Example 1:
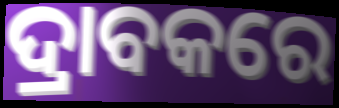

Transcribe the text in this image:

ଦ୍ରାବକରେ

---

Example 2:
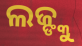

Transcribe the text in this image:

ଲଜ୍ଙ୍କୁ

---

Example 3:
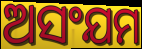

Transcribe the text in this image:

ଅସଂଯମ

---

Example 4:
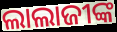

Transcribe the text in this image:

ଲାଲାଜୀଙ୍କ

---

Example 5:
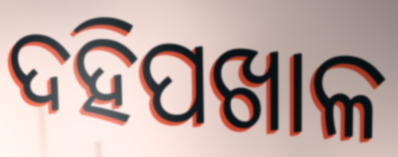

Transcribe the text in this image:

ଦହିପଖାଳ